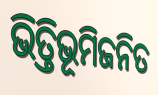
ଭିତ୍ତିଭୂମିଜନିତ